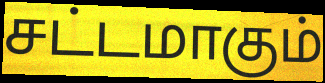
சட்டமாகும்